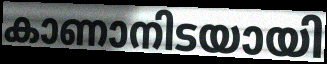
കാണാനിടയായി